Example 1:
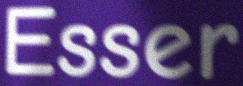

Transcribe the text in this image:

Esser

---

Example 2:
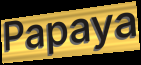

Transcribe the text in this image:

Papaya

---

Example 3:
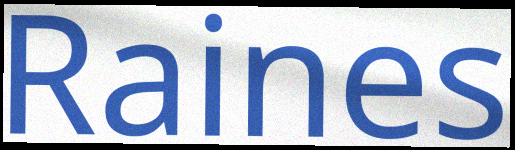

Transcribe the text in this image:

Raines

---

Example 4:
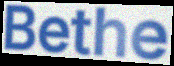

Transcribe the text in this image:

Bethe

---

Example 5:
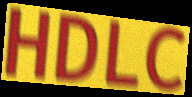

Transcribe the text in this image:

HDLC